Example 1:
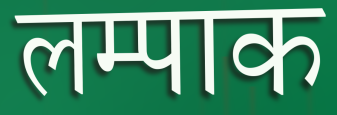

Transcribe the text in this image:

लम्पाक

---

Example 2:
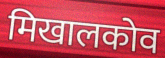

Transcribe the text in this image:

मिखालकोव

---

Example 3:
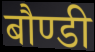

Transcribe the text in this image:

बौण्डी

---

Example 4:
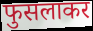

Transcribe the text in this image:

फुसलाकर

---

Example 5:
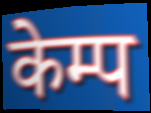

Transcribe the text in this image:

केम्प